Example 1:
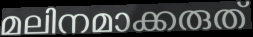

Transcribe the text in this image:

മലിനമാക്കരുത്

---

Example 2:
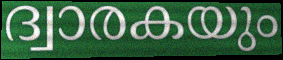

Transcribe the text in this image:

ദ്വാരകയും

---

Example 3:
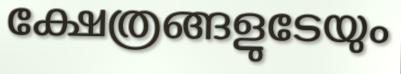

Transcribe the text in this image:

ക്ഷേത്രങ്ങളുടേയും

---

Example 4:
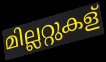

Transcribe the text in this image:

മില്ലറ്റുകള്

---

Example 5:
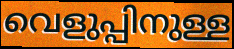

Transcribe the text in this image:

വെളുപ്പിനുള്ള